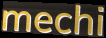
mechi